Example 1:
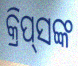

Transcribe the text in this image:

କ୍ରିପ୍‌ସଙ୍କ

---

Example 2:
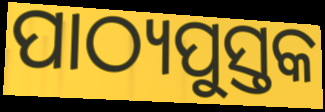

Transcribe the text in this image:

ପାଠ୍ୟପୁସ୍ତକ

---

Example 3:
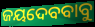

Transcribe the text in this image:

ଜୟଦେବବାବୁ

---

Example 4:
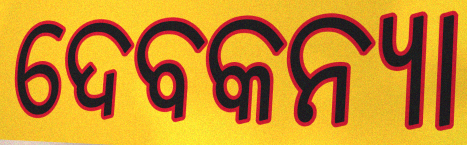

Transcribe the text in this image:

ଦେବକନ୍ୟା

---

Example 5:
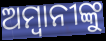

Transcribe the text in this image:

ଅମ୍ବାନୀଙ୍କୁ